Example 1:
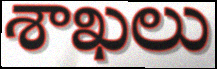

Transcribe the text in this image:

శాఖలు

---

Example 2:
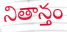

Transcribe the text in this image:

నితాన్తం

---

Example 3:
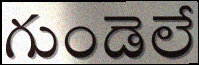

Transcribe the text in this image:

గుండెలే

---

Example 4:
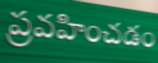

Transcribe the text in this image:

ప్రవహించడం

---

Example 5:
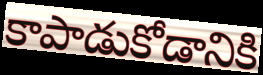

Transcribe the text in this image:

కాపాడుకోడానికి